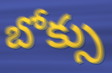
బోక్సు